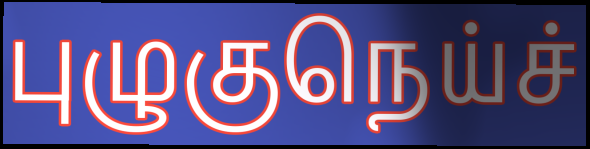
புழுகுநெய்ச்